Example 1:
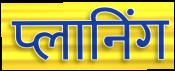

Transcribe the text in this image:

प्‍लानिंग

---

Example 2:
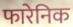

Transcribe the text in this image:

फारेनिक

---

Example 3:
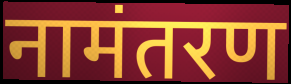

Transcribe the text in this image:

नामंतरण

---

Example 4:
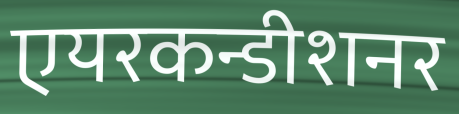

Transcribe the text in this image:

एयरकन्डीशनर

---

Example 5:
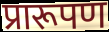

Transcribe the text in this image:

प्रारूपण